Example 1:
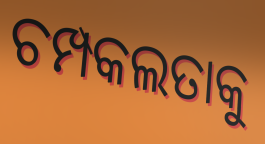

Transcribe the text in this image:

ଚମ୍ପକଲତାକୁ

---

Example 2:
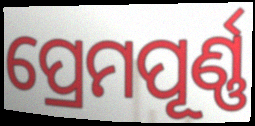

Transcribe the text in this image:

ପ୍ରେମପୂର୍ଣ୍ଣ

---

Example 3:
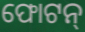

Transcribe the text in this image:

ଫୋଟନ୍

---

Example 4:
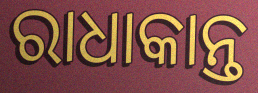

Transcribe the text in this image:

ରାଧାକାନ୍ତ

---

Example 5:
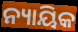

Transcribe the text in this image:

ନ୍ୟାୟିକ